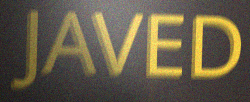
JAVED